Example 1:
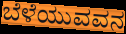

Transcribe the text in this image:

ಬೆಳೆಯುವವನ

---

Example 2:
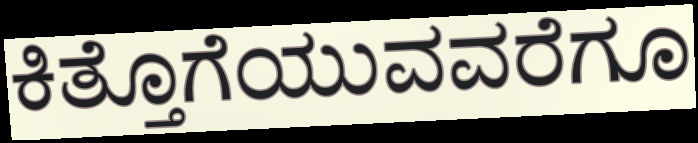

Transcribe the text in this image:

ಕಿತ್ತೊಗೆಯುವವರೆಗೂ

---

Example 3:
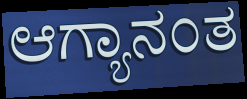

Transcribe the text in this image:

ಆಗ್ಯಾನಂತ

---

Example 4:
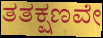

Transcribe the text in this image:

ತತಕ್ಷಣವೇ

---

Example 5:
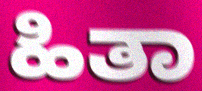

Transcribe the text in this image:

ಹಿತಾ